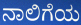
ನಾಲಿಗೆಯ